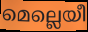
മെല്ലെയീ